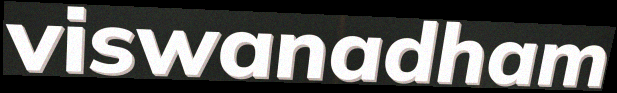
viswanadham